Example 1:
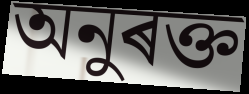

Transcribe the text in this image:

অনুৰক্ত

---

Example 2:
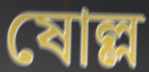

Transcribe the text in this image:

ষোল্ল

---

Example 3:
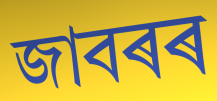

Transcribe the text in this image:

জাবৰৰ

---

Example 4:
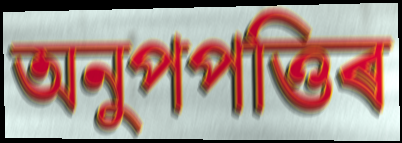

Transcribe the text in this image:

অনুপপত্তিৰ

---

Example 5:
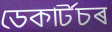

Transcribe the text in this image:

ডেকাৰ্টচৰ